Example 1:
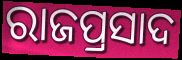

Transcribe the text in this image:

ରାଜପ୍ରସାଦ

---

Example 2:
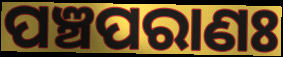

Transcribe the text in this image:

ପଞ୍ଚପରାଣଃ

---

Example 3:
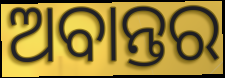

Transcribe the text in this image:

ଅବାନ୍ତର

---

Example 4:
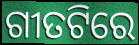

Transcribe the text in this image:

ଗୀତଟିରେ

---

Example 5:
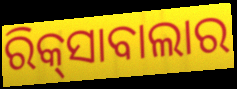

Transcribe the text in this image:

ରିକ୍‌ସାବାଲାର